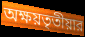
অক্ষয়তৃতীয়ার